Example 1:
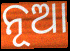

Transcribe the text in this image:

ନୂଆ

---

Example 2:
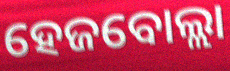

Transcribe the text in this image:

ହେଜବୋଲ୍ଲା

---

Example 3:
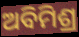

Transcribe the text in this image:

ଅବିମିଶ୍ର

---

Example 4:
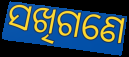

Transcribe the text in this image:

ସଖିଗଣେ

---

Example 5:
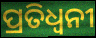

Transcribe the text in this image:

ପ୍ରତିଧ୍ଵନୀ